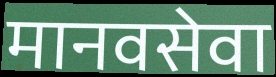
मानवसेवा